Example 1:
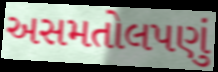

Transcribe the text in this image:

અસમતોલપણું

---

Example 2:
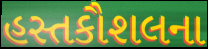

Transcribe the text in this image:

હસ્તકૌશલના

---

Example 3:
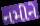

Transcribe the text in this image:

નમીને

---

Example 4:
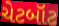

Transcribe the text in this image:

ચેટબૉટ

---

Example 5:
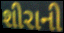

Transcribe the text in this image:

શીરાની